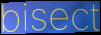
bisect